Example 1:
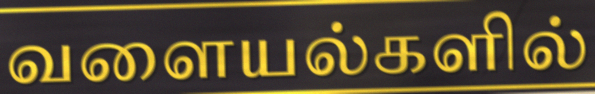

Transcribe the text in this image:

வளையல்களில்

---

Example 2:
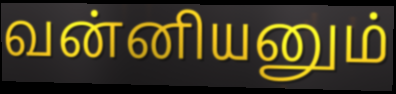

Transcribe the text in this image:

வன்னியனும்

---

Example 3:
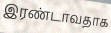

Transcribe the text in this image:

இரண்டாவதாக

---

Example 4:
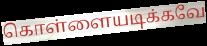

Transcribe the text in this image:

கொள்ளையடிக்கவே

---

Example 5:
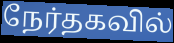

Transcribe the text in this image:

நேர்தகவில்